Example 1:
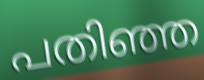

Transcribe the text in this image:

പതിഞ്ഞ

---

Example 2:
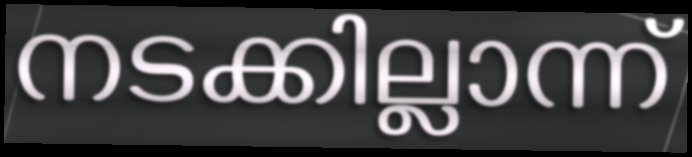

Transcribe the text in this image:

നടക്കില്ലാന്ന്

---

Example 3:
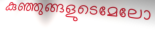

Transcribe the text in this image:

കുഞ്ഞുങ്ങളുടെമേലോ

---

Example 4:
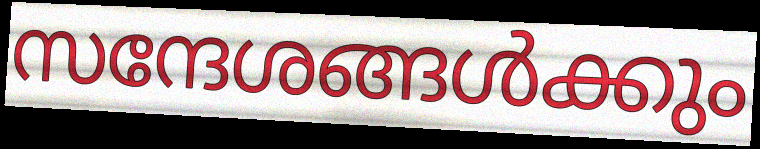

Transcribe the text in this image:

സന്ദേശങ്ങൾക്കും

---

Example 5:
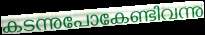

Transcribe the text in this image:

കടന്നുപോകേണ്ടിവന്നു